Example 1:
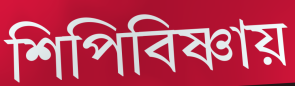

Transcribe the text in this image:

শিপিবিষ্ণায়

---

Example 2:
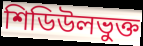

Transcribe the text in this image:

শিডিউলভুক্ত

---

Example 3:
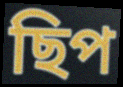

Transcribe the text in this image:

ছিপ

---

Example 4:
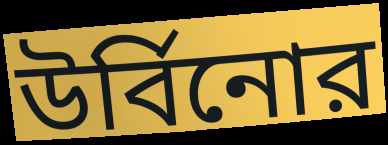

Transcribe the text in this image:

উর্বিনোর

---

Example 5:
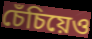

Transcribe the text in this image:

চেঁচিয়েও